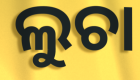
ଲୁଚା